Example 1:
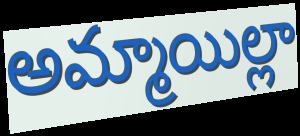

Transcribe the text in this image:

అమ్మాయిల్లా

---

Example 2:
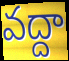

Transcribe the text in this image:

వద్దా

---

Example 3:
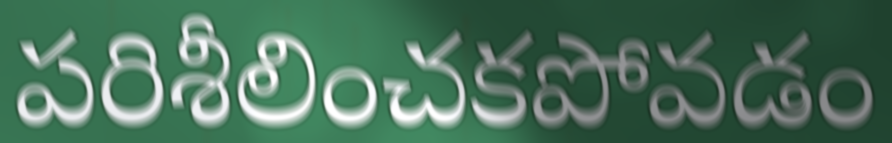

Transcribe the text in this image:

పరిశీలించకపోవడం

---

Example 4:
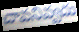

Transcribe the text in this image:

చావనివ్వదు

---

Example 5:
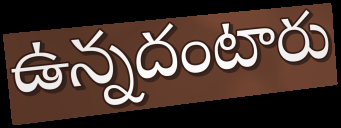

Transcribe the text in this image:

ఉన్నదంటారు